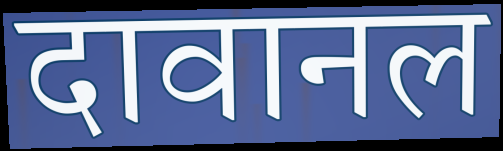
दावानल